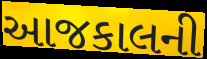
આજકાલની